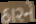
ઠારને